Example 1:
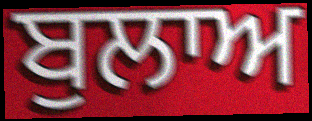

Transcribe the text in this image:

ਬੁਲਾਅ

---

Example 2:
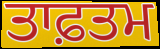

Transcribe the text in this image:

ਤਾਫ਼ਤਮ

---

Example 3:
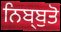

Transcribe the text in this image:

ਨਿਬ੍ਬੁਤੋ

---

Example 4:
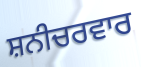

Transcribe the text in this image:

ਸ਼ਨੀਚਰਵਾਰ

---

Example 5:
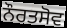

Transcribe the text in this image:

ਨੌਰਤਸੋਵ